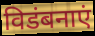
विडंबनाएं